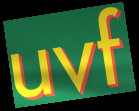
uvf